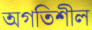
অগতিশীল